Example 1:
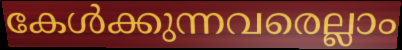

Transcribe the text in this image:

കേൾക്കുന്നവരെല്ലാം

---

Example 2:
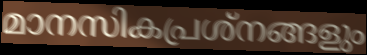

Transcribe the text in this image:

മാനസികപ്രശ്നങ്ങളും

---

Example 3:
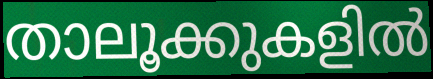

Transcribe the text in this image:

താലൂക്കുകളിൽ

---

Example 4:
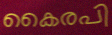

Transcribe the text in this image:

കൈരപി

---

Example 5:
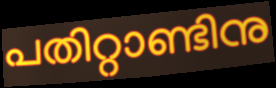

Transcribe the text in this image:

പതിറ്റാണ്ടിനു